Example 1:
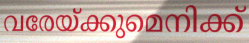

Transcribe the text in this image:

വരേയ്ക്കുമെനിക്ക്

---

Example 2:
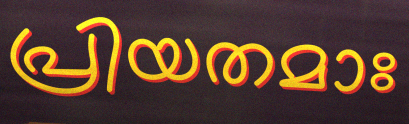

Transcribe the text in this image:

പ്രിയതമാഃ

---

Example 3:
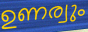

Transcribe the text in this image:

ഉണര്വും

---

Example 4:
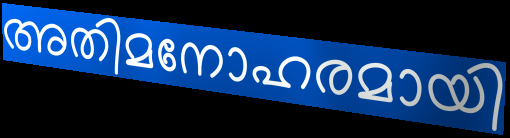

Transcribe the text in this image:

അതിമനോഹരമായി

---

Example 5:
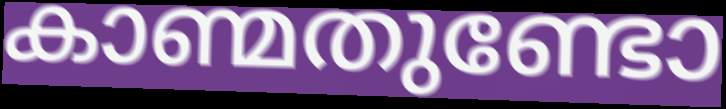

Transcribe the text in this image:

കാണ്മതുണ്ടോ